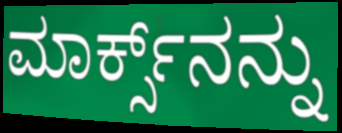
ಮಾರ್ಕ್ಸ್‌ನನ್ನು